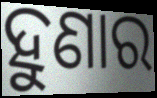
ହୁଣାର